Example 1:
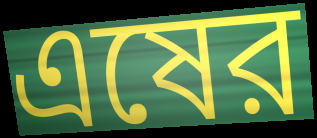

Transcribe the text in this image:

এষের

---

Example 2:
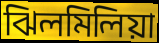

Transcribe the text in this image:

ঝিলমিলিয়া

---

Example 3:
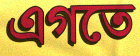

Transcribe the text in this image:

এগতে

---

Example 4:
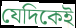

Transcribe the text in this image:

যেদিকেই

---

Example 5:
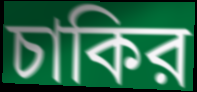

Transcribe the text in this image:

চাকির